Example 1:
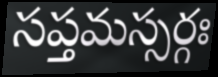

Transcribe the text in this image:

సప్తమస్సర్గః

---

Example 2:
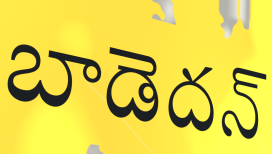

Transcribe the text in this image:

బాడెదన్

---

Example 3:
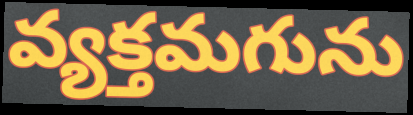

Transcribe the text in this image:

వ్యక్తమగును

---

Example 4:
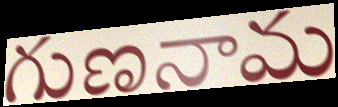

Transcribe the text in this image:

గుణనామ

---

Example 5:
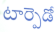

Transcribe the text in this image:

టార్పెడో